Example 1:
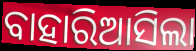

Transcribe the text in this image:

ବାହାରିଆସିଲା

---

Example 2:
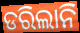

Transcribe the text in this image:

ଡରିଲାନି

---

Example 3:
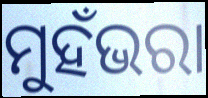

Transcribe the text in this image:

ମୁହଁଭରା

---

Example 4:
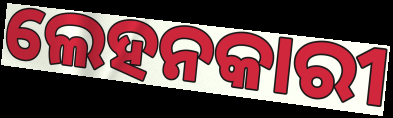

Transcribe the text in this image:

ଲେହନକାରୀ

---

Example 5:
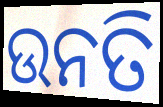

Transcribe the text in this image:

ଉନତି